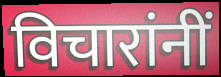
विचारांनीं